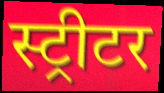
स्ट्रीटर